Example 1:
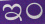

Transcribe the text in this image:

ఇం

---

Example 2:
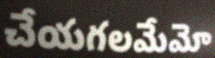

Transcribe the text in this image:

చేయగలమేమో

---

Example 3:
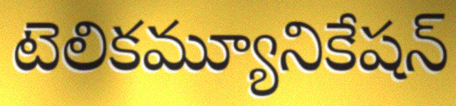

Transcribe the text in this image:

టెలికమ్యూనికేషన్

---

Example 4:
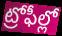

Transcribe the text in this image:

ట్రోఫీల్లో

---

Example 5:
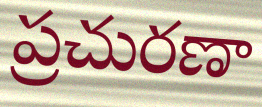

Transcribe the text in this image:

ప్రచురణా